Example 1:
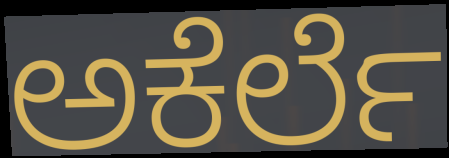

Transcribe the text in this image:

ಅಕೆರ್ಲೆ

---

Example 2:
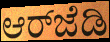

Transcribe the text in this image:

ಆರ್‌ಜೆಡಿ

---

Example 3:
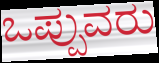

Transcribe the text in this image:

ಒಪ್ಪುವರು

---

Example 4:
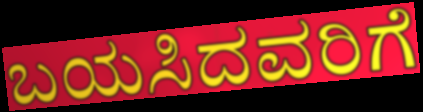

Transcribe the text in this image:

ಬಯಸಿದವರಿಗೆ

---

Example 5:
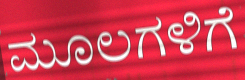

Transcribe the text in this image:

ಮೂಲಗಳಿಗೆ